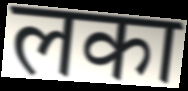
लका